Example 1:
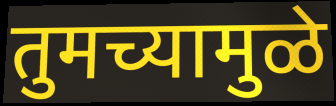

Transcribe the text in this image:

तुमच्यामुळे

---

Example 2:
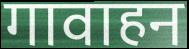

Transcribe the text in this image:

गावाहन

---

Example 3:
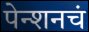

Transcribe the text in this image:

पेन्शनचं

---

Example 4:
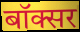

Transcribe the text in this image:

बॉक्सर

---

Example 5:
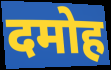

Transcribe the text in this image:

दमोह